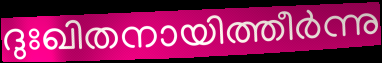
ദുഃഖിതനായിത്തീർന്നു